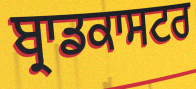
ਬ੍ਰਾਡਕਾਸਟਰ